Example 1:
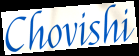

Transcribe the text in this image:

Chovishi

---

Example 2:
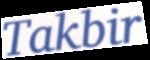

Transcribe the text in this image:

Takbir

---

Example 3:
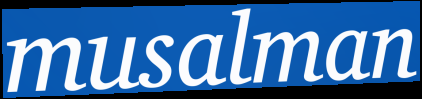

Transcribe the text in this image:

musalman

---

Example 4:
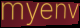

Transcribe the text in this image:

myenv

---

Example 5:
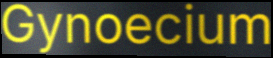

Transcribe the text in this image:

Gynoecium